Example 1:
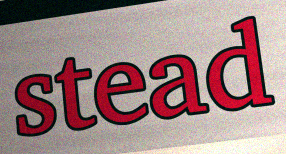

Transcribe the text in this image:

stead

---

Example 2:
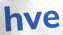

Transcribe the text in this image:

hve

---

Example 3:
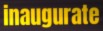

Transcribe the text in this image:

inaugurate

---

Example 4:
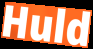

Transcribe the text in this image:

Huld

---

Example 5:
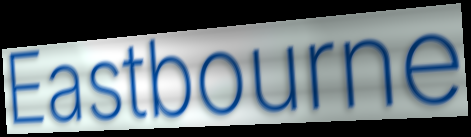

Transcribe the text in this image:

Eastbourne